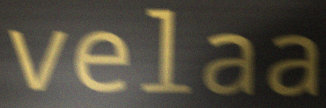
velaa